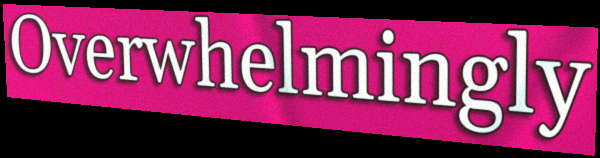
Overwhelmingly